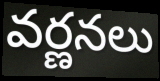
వర్ణనలు